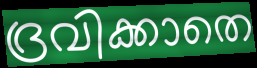
ദ്രവിക്കാതെ